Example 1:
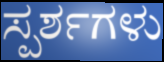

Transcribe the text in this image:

ಸ್ಪರ್ಶಗಳು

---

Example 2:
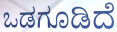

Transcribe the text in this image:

ಒಡಗೂಡಿದೆ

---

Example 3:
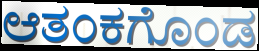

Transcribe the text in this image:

ಆತಂಕಗೊಂಡ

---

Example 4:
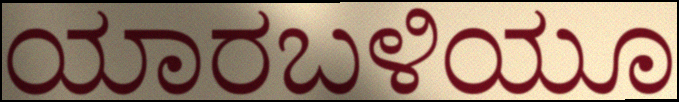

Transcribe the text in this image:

ಯಾರಬಳಿಯೂ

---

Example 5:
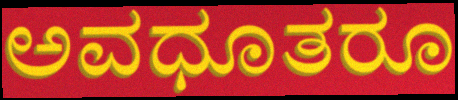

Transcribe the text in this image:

ಅವಧೂತರೂ